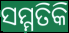
ସମ୍ମତିକି